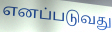
எனப்படுவது